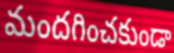
మందగించకుండా